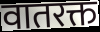
वातरक्त